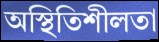
অস্থিতিশীলতা